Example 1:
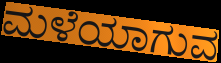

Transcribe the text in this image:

ಮಳೆಯಾಗುವ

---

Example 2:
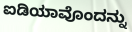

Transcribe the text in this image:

ಐಡಿಯಾವೊಂದನ್ನು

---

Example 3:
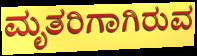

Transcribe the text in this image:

ಮೃತರಿಗಾಗಿರುವ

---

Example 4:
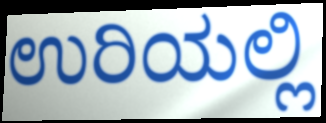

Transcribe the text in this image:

ಉರಿಯಲ್ಲಿ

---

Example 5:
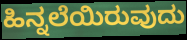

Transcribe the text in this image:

ಹಿನ್ನಲೆಯಿರುವುದು